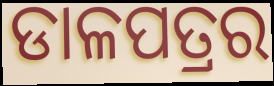
ଡାଳପତ୍ରର